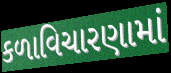
કળાવિચારણામાં